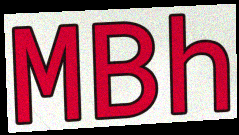
MBh